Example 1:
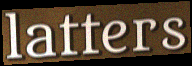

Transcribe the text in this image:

latters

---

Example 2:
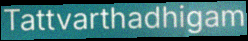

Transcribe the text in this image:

Tattvarthadhigam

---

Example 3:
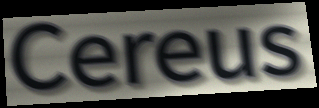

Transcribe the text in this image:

Cereus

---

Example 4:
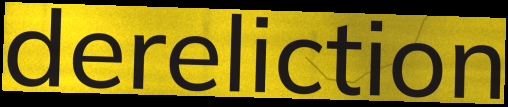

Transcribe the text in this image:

dereliction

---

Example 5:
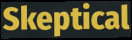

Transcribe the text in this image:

Skeptical